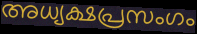
അധ്യക്ഷപ്രസംഗം